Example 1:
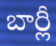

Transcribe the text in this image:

బార్లీ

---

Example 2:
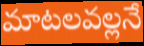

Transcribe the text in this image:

మాటలవల్లనే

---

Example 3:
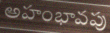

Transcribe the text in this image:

అహంభావపు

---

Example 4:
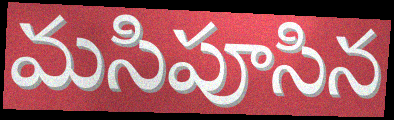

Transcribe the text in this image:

మసిపూసిన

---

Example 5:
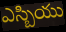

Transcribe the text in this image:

ఎస్బియు